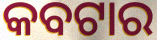
କବଟାର